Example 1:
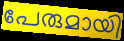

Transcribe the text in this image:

പേരുമായി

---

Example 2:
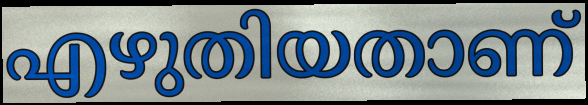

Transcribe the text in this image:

എഴുതിയതാണ്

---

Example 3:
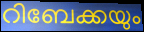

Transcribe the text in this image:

റിബേക്കയും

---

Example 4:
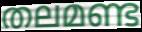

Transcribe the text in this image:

തലമണ്ട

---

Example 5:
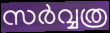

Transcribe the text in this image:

സർവ്വത്ര